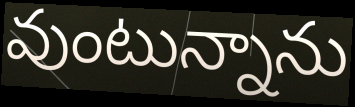
వుంటున్నాను